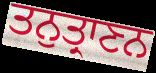
ਤਨੁਤ੍ਰਾਣਨ